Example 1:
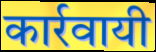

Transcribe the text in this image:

कार्रवायी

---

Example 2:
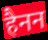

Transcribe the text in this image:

हैनन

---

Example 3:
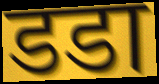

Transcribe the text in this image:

डडा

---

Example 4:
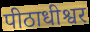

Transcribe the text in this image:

पीठाधीश्वर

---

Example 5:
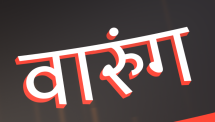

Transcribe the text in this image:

वारुंग